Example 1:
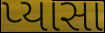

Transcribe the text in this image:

પ્યાસા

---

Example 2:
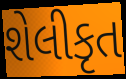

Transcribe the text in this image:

શેલીકૃત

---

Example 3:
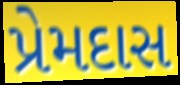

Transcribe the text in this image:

પ્રેમદાસ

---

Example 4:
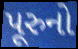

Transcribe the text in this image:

પૂરુનો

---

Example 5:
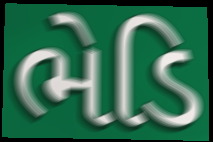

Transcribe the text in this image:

ભેડિ